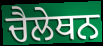
ਚੈਲੇਥਨ